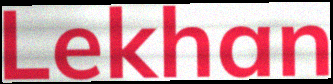
Lekhan